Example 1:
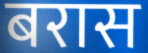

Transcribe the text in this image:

बरास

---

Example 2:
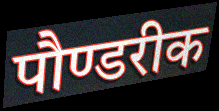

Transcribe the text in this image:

पौण्डरीक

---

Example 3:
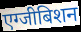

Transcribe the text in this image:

एग्जीबिशन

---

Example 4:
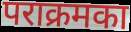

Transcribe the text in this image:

पराक्रमका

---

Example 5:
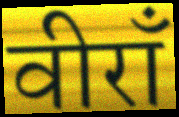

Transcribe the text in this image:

वीराँ